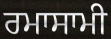
ਰਮਾਸਾਮੀ